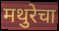
मथुरेचा